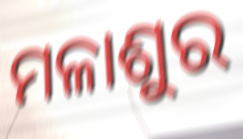
ମଳାଶୁର